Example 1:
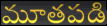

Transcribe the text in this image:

మూతపడి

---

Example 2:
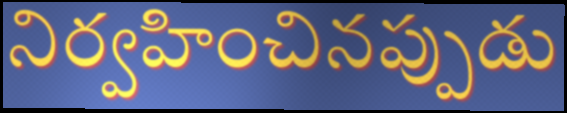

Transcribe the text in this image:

నిర్వహించినప్పుడు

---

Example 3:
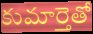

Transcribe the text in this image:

కుమార్తెతో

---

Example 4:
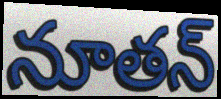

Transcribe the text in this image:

నూతన్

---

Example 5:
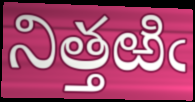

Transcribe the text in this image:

నిత్తఱిఁ